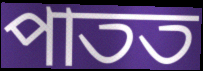
পাতত